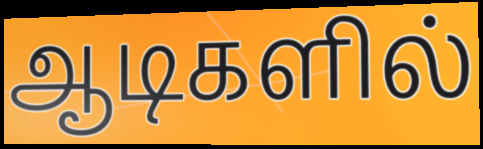
ஆடிகளில்